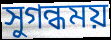
সুগন্ধময়